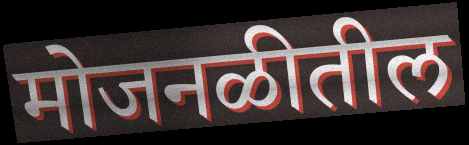
मोजनळीतील